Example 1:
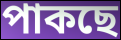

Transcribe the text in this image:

পাকছে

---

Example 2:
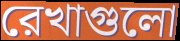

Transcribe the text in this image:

রেখাগুলো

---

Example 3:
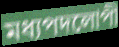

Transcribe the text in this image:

মধ্যপদলোপী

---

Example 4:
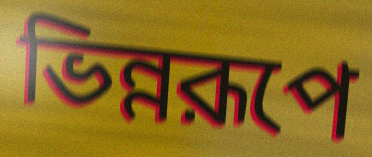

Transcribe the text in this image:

ভিন্নরূপে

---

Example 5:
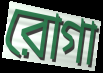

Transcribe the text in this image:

রোগা